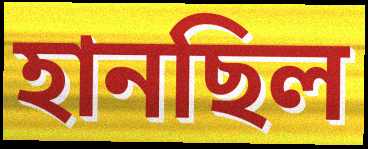
হানছিল